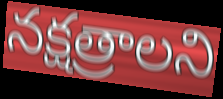
నక్షత్రాలని